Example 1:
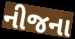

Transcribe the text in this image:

નીજના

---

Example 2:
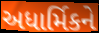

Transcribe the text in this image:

અધાર્મિકને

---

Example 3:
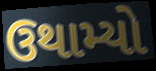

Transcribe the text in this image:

ઉથામ્યો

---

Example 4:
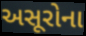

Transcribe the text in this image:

અસૂરોના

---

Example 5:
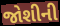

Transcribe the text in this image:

જોશીની